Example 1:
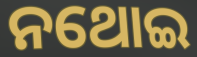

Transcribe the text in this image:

ନଥୋଇ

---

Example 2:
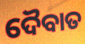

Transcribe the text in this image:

ଦୈବାତ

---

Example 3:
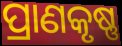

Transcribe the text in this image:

ପ୍ରାଣକୃଷ୍ଣ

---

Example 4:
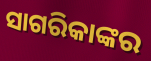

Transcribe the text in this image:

ସାଗରିକାଙ୍କର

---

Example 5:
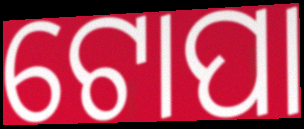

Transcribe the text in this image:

ଟୋପା